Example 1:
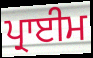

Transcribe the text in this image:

ਪ੍ਰਾਈਮ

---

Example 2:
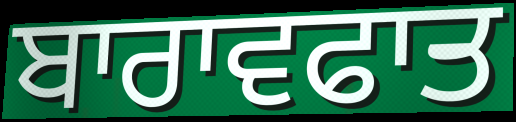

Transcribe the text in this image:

ਬਾਰਾਵਫਾਤ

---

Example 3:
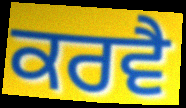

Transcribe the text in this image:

ਕਰਵੈ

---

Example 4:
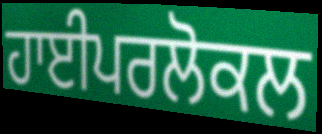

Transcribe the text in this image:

ਹਾਈਪਰਲੋਕਲ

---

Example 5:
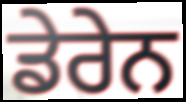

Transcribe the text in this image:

ਡੇਰੇਨ